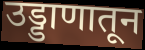
उड्डाणातून